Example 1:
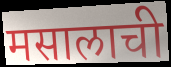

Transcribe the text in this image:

मसालाची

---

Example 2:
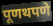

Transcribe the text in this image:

पूणथपणे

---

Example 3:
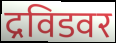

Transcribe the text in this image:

द्रविडवर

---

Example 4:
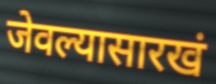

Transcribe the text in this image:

जेवल्यासारखं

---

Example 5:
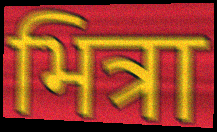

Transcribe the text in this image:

भित्रा